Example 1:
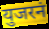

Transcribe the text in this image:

युजरनं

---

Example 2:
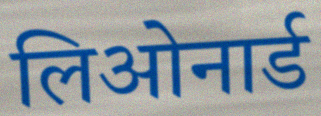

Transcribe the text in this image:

लिओनार्ड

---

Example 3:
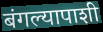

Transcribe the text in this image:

बंगल्यापाशी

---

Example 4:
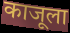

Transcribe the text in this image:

काजूला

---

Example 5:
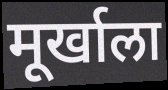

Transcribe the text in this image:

मूर्खाला